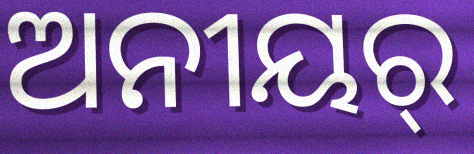
ଅନୀୟର୍